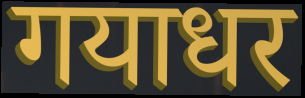
गयाधर